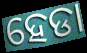
ହେଡା